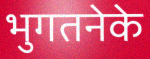
भुगतनेके